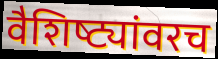
वैशिष्ट्यांवरच